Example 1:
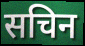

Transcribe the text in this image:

सचिन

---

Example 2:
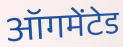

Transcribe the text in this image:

ऑगमेंटेड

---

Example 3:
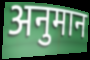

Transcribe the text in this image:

अनुमान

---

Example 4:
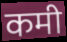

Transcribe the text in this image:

कमी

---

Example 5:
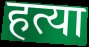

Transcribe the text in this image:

हत्या